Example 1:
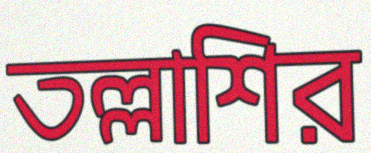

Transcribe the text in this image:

তল্লাশির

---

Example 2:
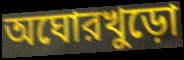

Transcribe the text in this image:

অঘোরখুড়ো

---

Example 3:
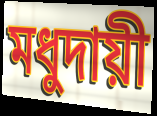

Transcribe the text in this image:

মধুদায়ী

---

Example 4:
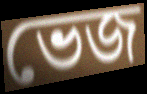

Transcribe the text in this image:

ভেজ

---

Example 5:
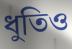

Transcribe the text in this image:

ধুতিও